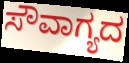
ಸೌವಾಗ್ಯದ